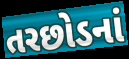
તરછોડનાં